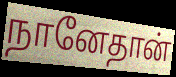
நானேதான்